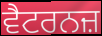
ਵੈਟਰਨਜ਼